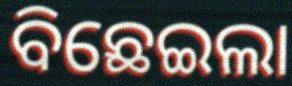
ବିଛେଇଲା